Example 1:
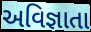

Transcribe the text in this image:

અવિજ્ઞાતા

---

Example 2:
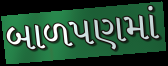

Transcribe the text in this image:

બાળપણમાં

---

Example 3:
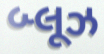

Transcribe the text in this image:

બ્લૂઝ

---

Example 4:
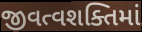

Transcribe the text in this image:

જીવત્વશક્તિમાં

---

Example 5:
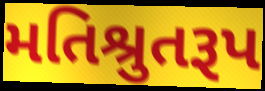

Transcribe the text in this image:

મતિશ્રુતરૂપ